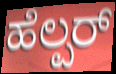
ಹೆಲ್ಪರ್